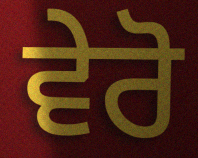
ਵੇਰੋ